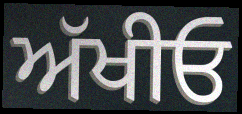
ਅੱਖੀਓ